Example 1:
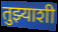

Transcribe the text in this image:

तुझ्याशी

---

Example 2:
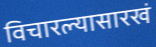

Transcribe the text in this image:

विचारल्यासारखं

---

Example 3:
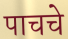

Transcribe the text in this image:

पाचचे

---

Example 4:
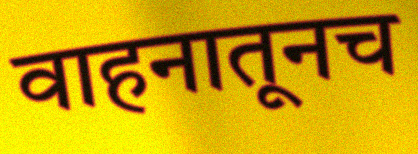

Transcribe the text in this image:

वाहनातूनच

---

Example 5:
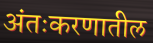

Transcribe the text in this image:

अंतःकरणातील